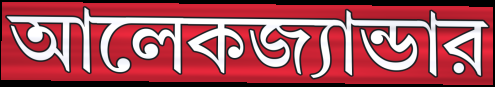
আলেকজ্যান্ডার